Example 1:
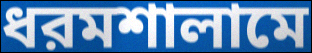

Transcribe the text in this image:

ধরমশালামে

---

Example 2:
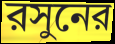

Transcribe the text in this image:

রসুনের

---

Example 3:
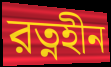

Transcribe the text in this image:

রত্নহীন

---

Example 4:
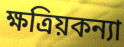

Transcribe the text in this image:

ক্ষত্রিয়কন্যা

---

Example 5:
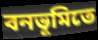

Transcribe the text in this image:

বনভূমিতে